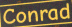
Conrad